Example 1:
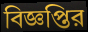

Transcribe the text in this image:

বিজ্ঞপ্তির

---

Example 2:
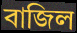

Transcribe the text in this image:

বাজিল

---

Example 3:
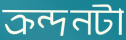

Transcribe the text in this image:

ক্রন্দনটা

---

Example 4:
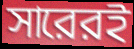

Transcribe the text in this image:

সারেরই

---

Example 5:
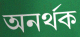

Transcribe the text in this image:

অনর্থক